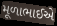
મૂળાભાઈએ